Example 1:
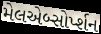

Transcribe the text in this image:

મેલએબ્સોર્પ્શન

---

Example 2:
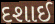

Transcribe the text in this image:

દશાઈ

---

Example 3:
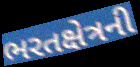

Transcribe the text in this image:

ભરતક્ષેત્રની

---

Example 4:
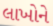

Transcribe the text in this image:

લાખોને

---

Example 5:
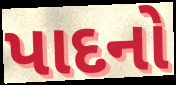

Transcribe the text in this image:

પાદનો